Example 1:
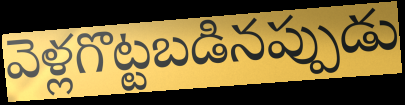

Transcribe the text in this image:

వెళ్లగొట్టబడినప్పుడు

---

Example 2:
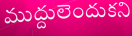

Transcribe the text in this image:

ముద్దులెందుకని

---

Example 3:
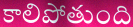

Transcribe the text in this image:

కాలిపోతుంది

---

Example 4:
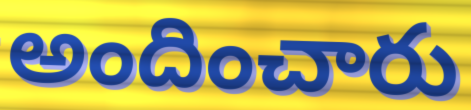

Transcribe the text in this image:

అందించారు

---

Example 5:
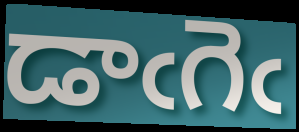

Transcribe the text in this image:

డాఁగెఁ